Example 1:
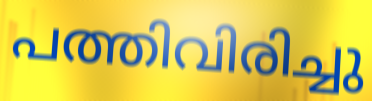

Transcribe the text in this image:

പത്തിവിരിച്ചു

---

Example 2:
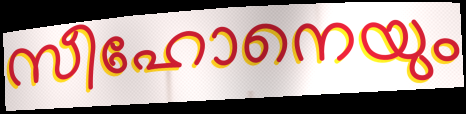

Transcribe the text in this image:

സീഹോനെയും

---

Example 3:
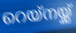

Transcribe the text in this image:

റെയ്നയ്ക്ക്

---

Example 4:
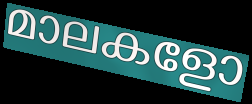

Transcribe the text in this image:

മാലകളോ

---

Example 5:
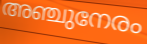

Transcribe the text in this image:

അഞ്ചുനേരം